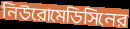
নিউরোমেডিসিনের